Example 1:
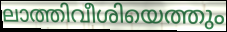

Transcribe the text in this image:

ലാത്തിവീശിയെത്തും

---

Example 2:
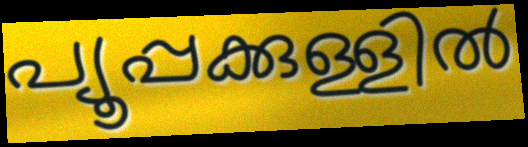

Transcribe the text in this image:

പ്യൂപ്പക്കുള്ളിൽ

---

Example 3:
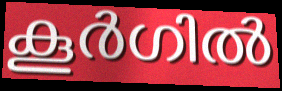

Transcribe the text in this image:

കൂർഗിൽ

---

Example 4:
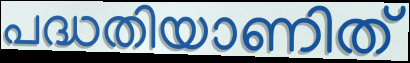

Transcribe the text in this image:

പദ്ധതിയാണിത്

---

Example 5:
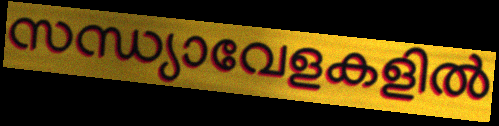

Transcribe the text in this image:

സന്ധ്യാവേളകളിൽ